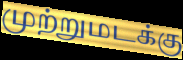
முற்றுமடக்கு